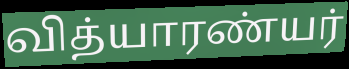
வித்யாரண்யர்